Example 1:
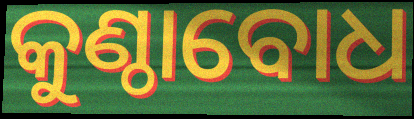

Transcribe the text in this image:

କୁଣ୍ଠାବୋଧ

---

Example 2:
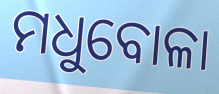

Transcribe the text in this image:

ମଧୁବୋଳା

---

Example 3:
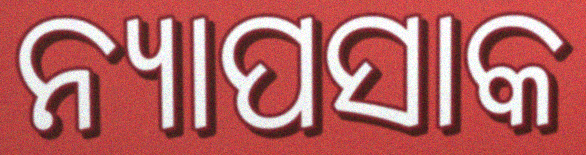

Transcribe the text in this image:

ନ୍ୟାପସାକ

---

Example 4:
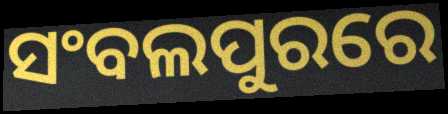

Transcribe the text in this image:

ସଂବଲପୁରରେ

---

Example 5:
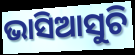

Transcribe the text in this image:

ଭାସିଆସୁଚି